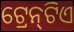
ଟ୍ରେନ୍‌ଟିଏ